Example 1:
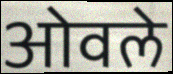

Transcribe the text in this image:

ओवले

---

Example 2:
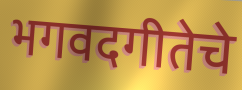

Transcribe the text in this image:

भगवदगीतेचे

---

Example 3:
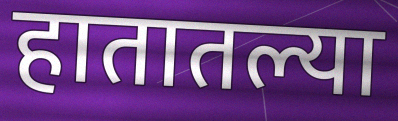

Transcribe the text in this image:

हातातल्या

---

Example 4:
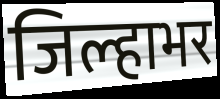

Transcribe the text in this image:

जिल्हाभर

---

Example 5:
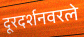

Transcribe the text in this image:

दूरदर्शनवरले